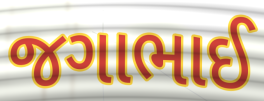
જગાભાઈ